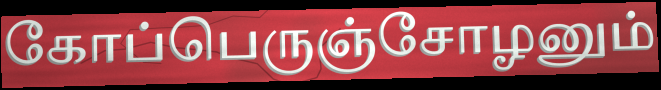
கோப்பெருஞ்சோழனும்